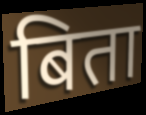
बिता